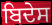
ਬਿਦੇਸ